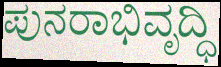
ಪುನರಾಭಿವೃದ್ಧಿ